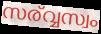
സര്വ്വസ്വം